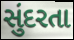
સુંદરતા